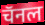
चॅनल